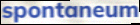
spontaneum